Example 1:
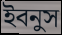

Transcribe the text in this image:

ইবনুস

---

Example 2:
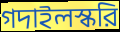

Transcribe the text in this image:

গদাইলস্করি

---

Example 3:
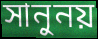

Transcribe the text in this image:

সানুনয়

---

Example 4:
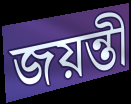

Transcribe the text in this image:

জয়ন্তী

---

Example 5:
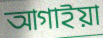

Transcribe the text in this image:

আগাইয়া